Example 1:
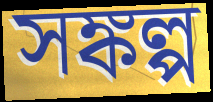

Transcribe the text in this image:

সঙ্কল্প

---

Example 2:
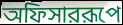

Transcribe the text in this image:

অফিসাররূপে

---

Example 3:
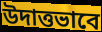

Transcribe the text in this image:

উদাত্তভাবে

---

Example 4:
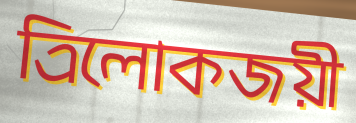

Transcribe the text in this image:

ত্রিলোকজয়ী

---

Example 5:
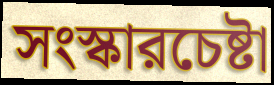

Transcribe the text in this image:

সংস্কারচেষ্টা